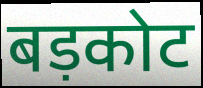
बड़कोट